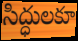
సిద్ధులకూ